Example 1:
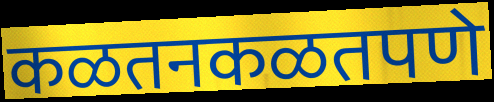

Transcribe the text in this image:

कळतनकळतपणे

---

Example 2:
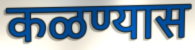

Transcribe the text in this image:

कळण्यास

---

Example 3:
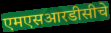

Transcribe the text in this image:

एमएसआरडीसीचे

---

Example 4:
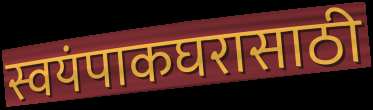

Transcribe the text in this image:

स्वयंपाकघरासाठी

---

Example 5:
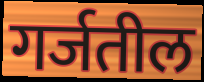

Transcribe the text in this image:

गर्जतील